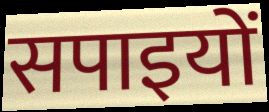
सपाइयों